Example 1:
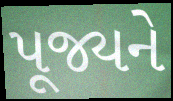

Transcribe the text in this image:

પૂજ્યને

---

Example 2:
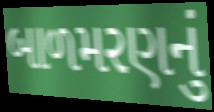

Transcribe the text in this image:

બાળમરણનું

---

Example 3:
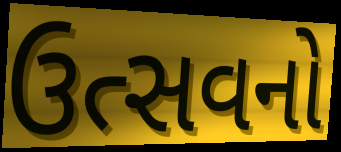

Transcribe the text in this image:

ઉત્સવનો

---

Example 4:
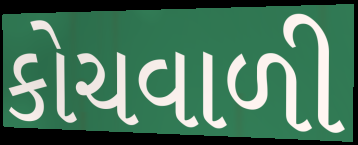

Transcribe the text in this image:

કોચવાળી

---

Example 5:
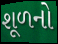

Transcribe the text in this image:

શૂળનો